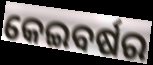
କେଇବର୍ଷର